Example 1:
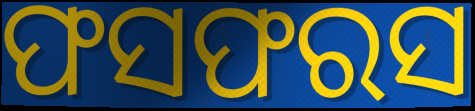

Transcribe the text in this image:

ଫସଫରସ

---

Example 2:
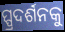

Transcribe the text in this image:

ପ୍ପ୍ରଦର୍ଶନକୁ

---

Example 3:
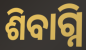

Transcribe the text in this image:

ଶିବାଗ୍ନି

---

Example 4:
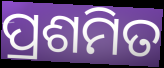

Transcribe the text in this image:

ପ୍ରଶମିତ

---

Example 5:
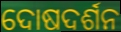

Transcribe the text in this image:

ଦୋଷଦର୍ଶନ